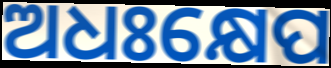
ଅଧଃକ୍ଷେପ